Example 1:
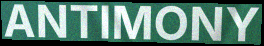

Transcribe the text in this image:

ANTIMONY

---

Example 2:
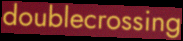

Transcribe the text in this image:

doublecrossing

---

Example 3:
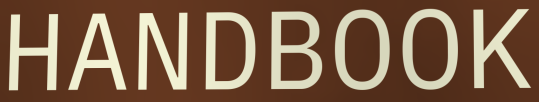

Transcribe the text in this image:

HANDBOOK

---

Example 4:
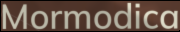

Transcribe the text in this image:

Mormodica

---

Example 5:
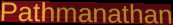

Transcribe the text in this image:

Pathmanathan